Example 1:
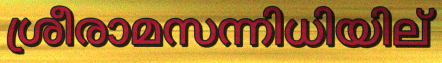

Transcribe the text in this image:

ശ്രീരാമസന്നിധിയില്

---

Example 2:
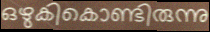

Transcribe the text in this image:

ഒഴുകികൊണ്ടിരുന്നു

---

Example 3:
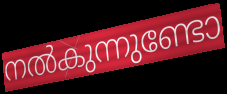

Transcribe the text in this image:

നൽകുന്നുണ്ടോ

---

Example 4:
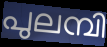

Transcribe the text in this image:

പുലമ്പി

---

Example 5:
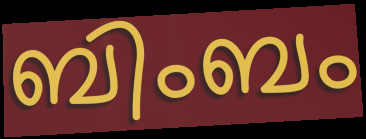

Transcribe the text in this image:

ബിംബം